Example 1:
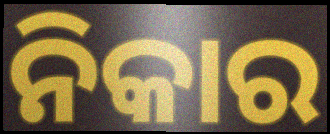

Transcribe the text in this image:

ନିକାର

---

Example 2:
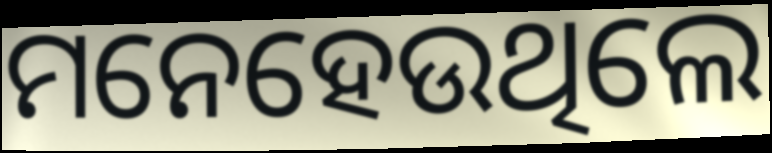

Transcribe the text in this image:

ମନେହେଉଥିଲେ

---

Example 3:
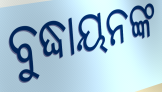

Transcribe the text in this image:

ବୁଦ୍ଧାୟନଙ୍କ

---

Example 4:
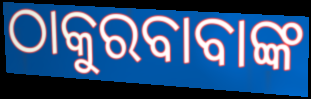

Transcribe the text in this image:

ଠାକୁରବାବାଙ୍କ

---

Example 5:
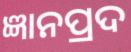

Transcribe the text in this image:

ଜ୍ଞାନପ୍ରଦ